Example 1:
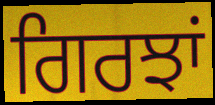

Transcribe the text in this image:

ਗਿਰਝਾਂ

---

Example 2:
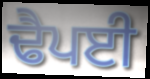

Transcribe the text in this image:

ਢੈਪਈ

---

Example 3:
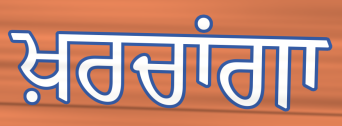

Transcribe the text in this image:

ਖ਼ਰਚਾਂਗਾ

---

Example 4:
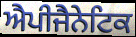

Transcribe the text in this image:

ਐਪੀਜੈਨੇਟਿਕ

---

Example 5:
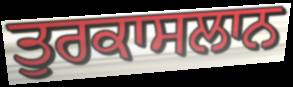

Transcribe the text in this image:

ਤੁਰਕਾਸਲਾਨ